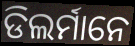
ଡିଲର୍ମାନେ